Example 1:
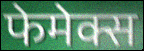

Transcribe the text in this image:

फेमेक्स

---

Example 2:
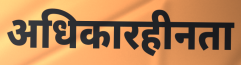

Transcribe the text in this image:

अधिकारहीनता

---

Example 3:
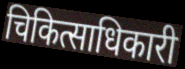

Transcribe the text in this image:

चिकित्साधिकारी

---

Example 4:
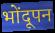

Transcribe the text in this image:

भोंदूपन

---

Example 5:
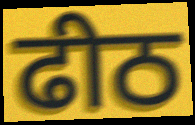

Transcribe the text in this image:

ढीठ